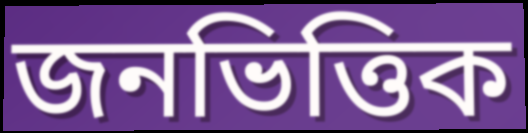
জনভিত্তিক